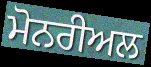
ਮੋਨਰੀਅਲ